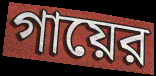
গায়ের